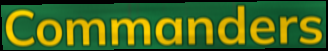
Commanders